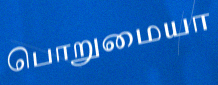
பொறுமையா